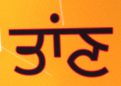
ਤਾਂਣ